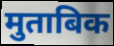
मुताबिक